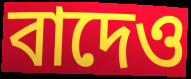
বাদেও